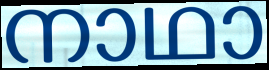
നാഥാ